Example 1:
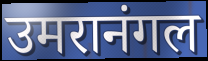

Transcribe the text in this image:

उमरानंगल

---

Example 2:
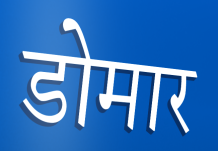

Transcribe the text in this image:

डोमार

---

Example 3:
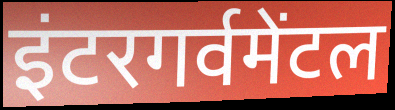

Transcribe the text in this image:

इंटरगर्वमेंटल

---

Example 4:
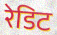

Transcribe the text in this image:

रेडिट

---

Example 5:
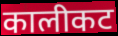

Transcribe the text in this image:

कालीकट